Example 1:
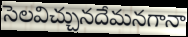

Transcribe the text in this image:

సెలవిచ్చునదేమనగానా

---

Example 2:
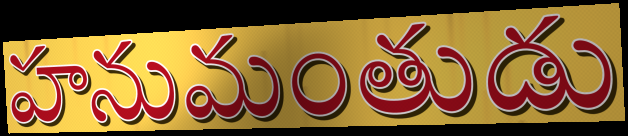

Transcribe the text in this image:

హనుమంతుడు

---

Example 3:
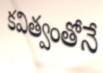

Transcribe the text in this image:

కవిత్వంతోనే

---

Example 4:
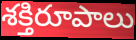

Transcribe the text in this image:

శక్తిరూపాలు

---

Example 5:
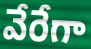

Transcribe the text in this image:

వేరేగా